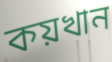
কয়খান